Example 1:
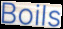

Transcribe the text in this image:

Boils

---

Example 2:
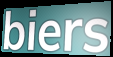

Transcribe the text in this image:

biers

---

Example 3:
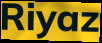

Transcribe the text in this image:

Riyaz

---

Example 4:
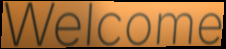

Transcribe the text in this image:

Welcome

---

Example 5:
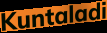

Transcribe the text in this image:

Kuntaladi